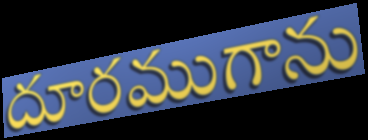
దూరముగాను